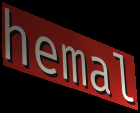
hemal